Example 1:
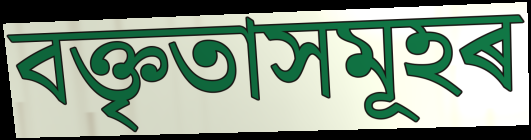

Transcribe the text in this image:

বক্তৃতাসমূহৰ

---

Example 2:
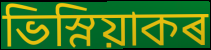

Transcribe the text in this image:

ভিস্নিয়াকৰ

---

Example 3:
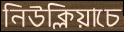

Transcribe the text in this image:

নিউক্লিয়াচে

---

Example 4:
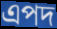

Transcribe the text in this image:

এপদ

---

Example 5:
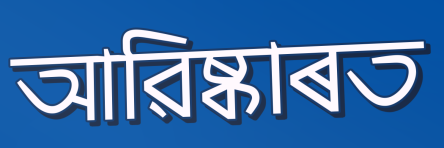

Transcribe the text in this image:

আৱিষ্কাৰত